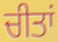
ਚੀਤਾਂ